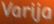
Varija